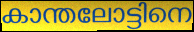
കാന്തലോട്ടിനെ